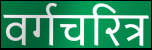
वर्गचरित्र